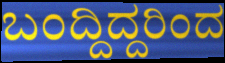
ಬಂದ್ದಿದ್ದರಿಂದ